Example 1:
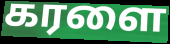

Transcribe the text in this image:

கரளை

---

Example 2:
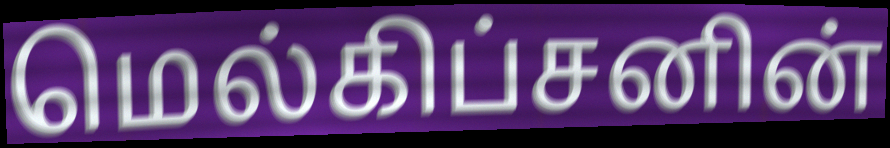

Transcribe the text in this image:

மெல்கிப்சனின்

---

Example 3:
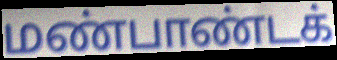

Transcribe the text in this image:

மண்பாண்டக்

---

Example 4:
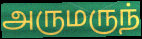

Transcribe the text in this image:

அருமருந்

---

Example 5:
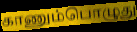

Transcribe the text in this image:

காணும்பொழுது